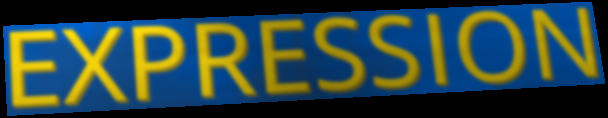
EXPRESSION